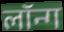
लॉन्ग